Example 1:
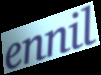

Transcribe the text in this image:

ennil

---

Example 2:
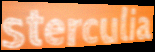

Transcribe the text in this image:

sterculia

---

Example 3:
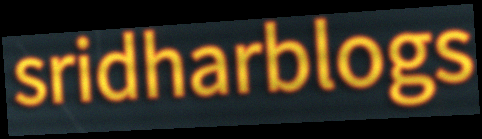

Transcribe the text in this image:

sridharblogs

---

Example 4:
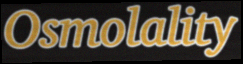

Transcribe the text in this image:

Osmolality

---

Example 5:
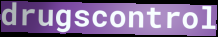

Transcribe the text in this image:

drugscontrol